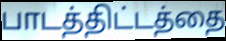
பாடத்திட்டத்தை